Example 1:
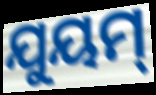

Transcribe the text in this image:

ଯୁୟମ୍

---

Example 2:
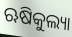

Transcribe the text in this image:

ଋଷିକୁଲ୍ୟା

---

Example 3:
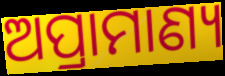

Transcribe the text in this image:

ଅପ୍ରାମାଣ୍ୟ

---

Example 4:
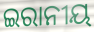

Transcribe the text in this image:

ଇରାନୀୟ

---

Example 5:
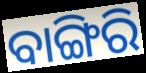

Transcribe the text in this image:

ବାଙ୍ଗିରି